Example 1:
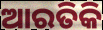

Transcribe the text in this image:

ଆରତିକି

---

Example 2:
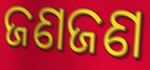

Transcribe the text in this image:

ଜଣଜଣ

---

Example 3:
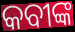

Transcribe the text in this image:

କବୀଙ୍କ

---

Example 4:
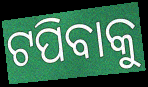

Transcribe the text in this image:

ଟପିବାକୁ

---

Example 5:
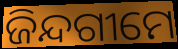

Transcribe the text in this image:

ଜିନ୍ଦଗୀମେ